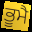
ਭੂਮੈ